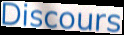
Discours